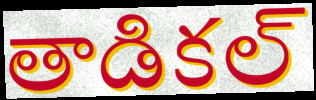
తాడికల్